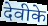
देवीके